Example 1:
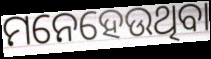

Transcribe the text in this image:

ମନେହେଉଥିବା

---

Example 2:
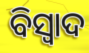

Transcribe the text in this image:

ବିସ୍ଵାଦ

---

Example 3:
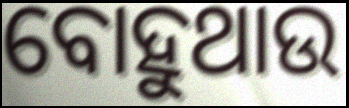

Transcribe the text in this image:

ବୋହୁଥାଉ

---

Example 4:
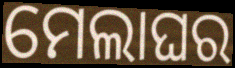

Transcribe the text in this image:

ମେଲାଘର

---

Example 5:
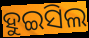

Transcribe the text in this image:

ହୁଇସିଲ